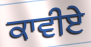
ਕਾਵੀਏ